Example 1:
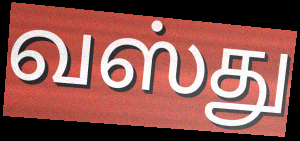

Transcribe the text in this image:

வஸ்து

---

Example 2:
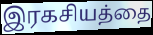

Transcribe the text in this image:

இரகசியத்தை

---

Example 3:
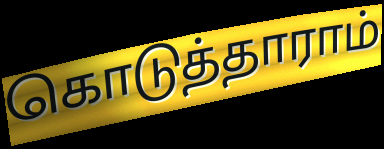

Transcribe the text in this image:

கொடுத்தாராம்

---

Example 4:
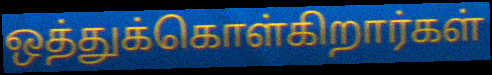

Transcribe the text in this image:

ஒத்துக்கொள்கிறார்கள்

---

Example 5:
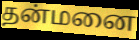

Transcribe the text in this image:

தன்மனை